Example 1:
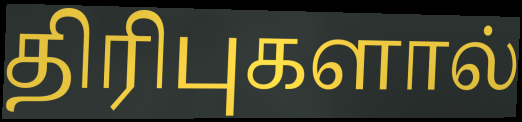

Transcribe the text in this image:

திரிபுகளால்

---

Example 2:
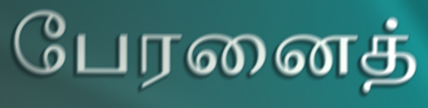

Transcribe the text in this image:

பேரனைத்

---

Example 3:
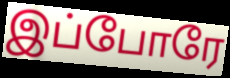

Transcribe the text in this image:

இப்போரே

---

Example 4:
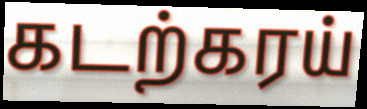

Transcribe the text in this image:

கடற்கரய்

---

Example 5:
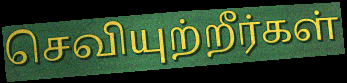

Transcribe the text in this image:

செவியுற்றீர்கள்